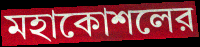
মহাকোশলের